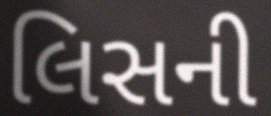
લિસની